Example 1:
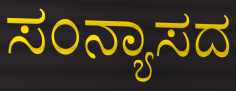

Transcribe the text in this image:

ಸಂನ್ಯಾಸದ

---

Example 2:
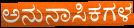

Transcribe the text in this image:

ಅನುನಾಸಿಕಗಳ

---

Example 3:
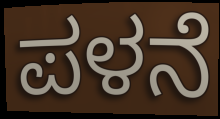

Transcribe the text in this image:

ಪಳನೆ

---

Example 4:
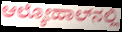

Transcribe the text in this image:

ಆಲ್ಕೋಹಾಲ್‌ನಲ್ಲಿ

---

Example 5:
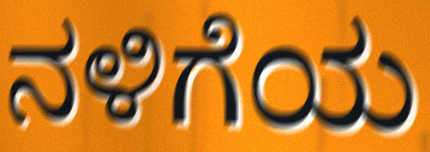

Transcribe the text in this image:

ನಳಿಗೆಯ